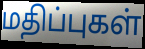
மதிப்புகள்